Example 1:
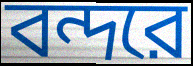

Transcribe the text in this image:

বন্দরে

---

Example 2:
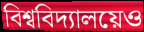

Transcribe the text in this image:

বিশ্ববিদ্যালয়েও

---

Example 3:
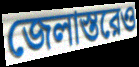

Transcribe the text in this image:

জেলাস্তরেও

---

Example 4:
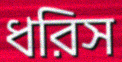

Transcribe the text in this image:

ধরিস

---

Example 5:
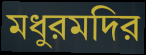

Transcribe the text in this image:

মধুরমদির